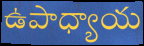
ఉపాధ్యాయ